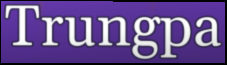
Trungpa